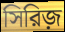
সিরিজ়